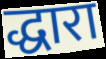
द्धारा